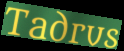
Tadrus